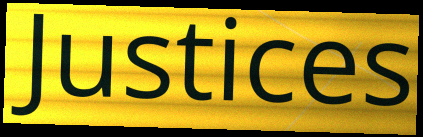
Justices